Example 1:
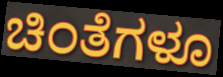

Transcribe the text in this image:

ಚಿಂತೆಗಳೂ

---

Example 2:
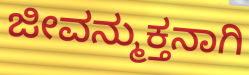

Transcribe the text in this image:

ಜೀವನ್ಮುಕ್ತನಾಗಿ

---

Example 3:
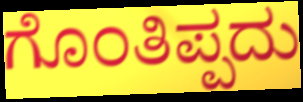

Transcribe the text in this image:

ಗೊಂತಿಪ್ಪದು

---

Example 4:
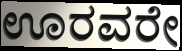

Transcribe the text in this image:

ಊರವರೇ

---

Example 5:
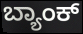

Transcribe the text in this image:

ಬ್ಯಾಂಕ್